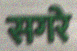
सगरे